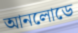
আনলোডে